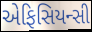
એફિસિયન્સી